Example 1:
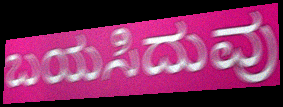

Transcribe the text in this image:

ಬಯಸಿದುವು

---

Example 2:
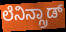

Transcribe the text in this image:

ಲೆನಿನ್ಗ್ರಾಡ್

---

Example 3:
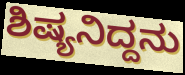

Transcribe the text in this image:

ಶಿಷ್ಯನಿದ್ದನು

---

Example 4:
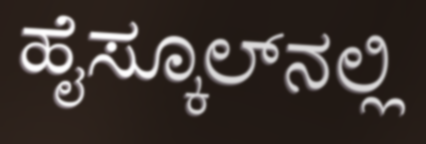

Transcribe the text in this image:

ಹೈಸ್ಕೂಲ್‍ನಲ್ಲಿ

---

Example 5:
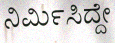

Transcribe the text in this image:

ನಿರ್ಮಿಸಿದ್ದೇ